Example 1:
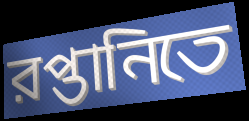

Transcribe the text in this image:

রপ্তানিতে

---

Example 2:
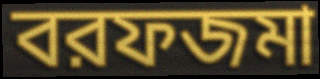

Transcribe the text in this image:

বরফজমা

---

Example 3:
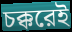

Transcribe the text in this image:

চক্করেই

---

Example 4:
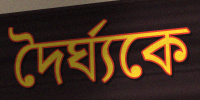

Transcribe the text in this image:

দৈর্ঘ্যকে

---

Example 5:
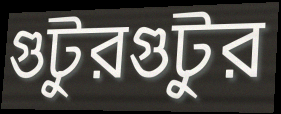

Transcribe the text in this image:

গুটুরগুটুর